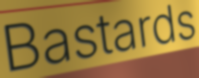
Bastards